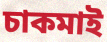
চাকমাই